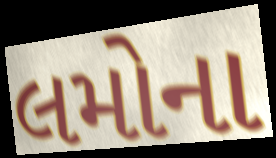
લમોના